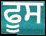
ਫੂਸ